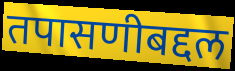
तपासणीबद्दल